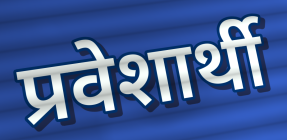
प्रवेशार्थी